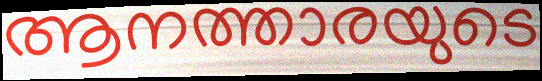
ആനത്താരയുടെ